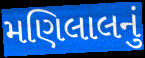
મણિલાલનું